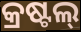
କ୍ରଷ୍ଟଲ୍